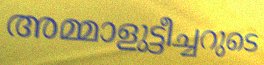
അമ്മാളുട്ടീച്ചറുടെ